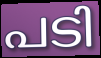
പടി